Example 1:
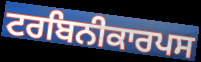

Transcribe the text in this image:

ਟਰਬਿਨੀਕਾਰਪਸ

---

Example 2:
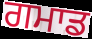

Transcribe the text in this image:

ਗਮਾਡ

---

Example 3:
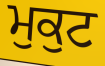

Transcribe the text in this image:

ਮੁਕੁਟ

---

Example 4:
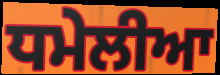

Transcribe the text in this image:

ਧਮੇਲੀਆ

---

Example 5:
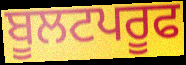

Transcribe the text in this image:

ਬੂਲਟਪਰੂਫ